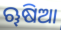
ୠଷିଆ